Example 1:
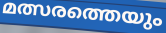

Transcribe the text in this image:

മത്സരത്തെയും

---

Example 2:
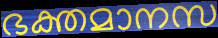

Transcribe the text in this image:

ഭക്തമാനസ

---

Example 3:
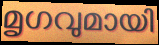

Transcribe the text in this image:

മൃഗവുമായി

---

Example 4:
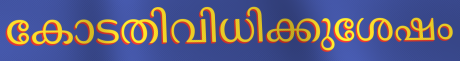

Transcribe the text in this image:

കോടതിവിധിക്കുശേഷം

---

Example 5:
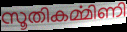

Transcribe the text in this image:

സൂതികൎമ്മിണി